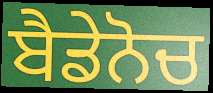
ਬੈਡੇਨੋਚ